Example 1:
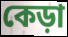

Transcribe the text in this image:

কেড়া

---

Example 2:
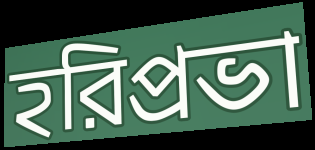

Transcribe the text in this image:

হরিপ্রভা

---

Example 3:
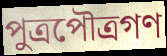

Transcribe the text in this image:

পুত্রপৌত্রগণ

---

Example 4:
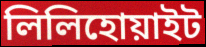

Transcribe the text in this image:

লিলিহোয়াইট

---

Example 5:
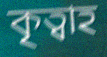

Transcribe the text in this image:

কৃত্বাহ